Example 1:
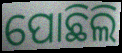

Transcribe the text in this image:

ପୋଛିଲି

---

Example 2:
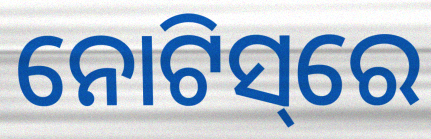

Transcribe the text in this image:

ନୋଟିସ୍‌ରେ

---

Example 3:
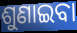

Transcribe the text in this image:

ଶୁଣାଇବା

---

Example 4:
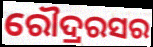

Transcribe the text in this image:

ରୌଦ୍ରରସର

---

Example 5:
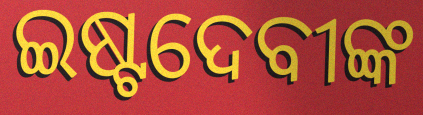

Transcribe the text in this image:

ଇଷ୍ଟଦେବୀଙ୍କ